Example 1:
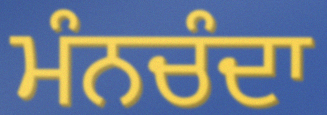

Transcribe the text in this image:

ਮੰਨਚੰਦਾ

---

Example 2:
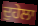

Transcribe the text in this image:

ਦੁਹੇਲਾ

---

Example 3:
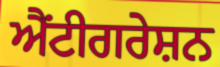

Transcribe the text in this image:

ਐਂਟੀਗਰੇਸ਼ਨ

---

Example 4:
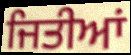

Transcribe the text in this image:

ਜਿਤੀਆਂ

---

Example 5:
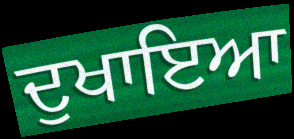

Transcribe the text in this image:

ਦੁਖਾਇਆ